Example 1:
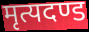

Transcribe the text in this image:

मृत्यदण्ड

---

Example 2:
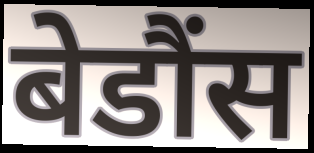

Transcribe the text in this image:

बेडौंस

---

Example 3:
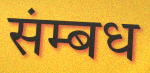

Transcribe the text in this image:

संम्बध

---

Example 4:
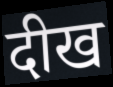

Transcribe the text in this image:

दीख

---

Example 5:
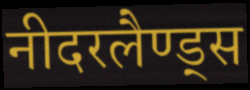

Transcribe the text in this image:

नीदरलैण्ड्स